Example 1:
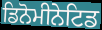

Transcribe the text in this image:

ਡਿਨੋਮੀਨੇਟਿਡ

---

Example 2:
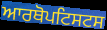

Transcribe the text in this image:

ਆਰਥੋਪਟਿਸਟਸ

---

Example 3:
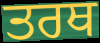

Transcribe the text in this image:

ਤਰਥ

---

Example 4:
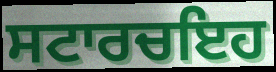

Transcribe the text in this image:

ਸਟਾਰਚਇਹ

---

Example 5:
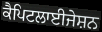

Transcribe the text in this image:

ਕੈਪਿਟਲਾਈਜੇਸ਼ਨ